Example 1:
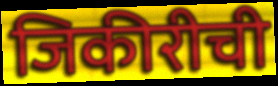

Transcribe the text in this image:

जिकीरीची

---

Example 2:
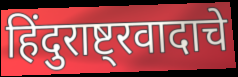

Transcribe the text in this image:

हिंदुराष्ट्रवादाचे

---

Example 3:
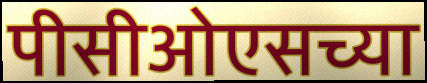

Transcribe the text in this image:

पीसीओएसच्या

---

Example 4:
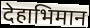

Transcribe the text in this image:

देहाभिमान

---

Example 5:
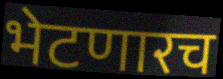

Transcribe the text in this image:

भेटणारच